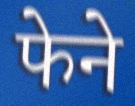
फेने